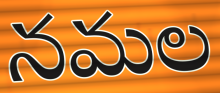
నమల